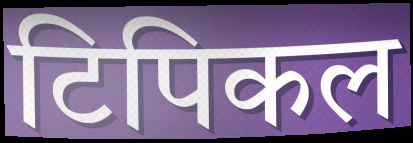
टिपिकल